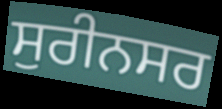
ਸੁਰੀਨਸਰ